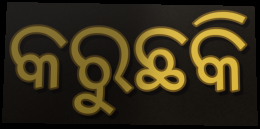
କରୁଛକି